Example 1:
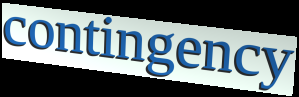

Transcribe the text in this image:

contingency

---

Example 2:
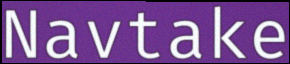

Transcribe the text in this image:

Navtake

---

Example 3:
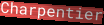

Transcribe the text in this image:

Charpentier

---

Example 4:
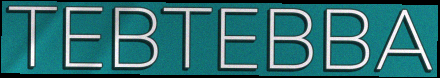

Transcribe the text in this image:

TEBTEBBA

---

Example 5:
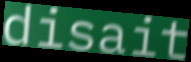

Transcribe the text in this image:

disait